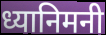
ध्यानिमनी